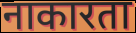
नाकारता